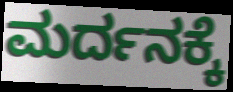
ಮರ್ದನಕ್ಕೆ